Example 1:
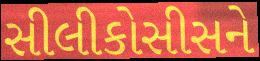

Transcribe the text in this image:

સીલીકોસીસને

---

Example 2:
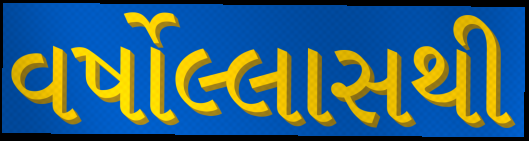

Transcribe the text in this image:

વર્ષોલ્લાસથી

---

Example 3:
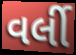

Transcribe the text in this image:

વર્લી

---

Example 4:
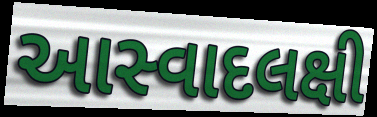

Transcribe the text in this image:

આસ્વાદલક્ષી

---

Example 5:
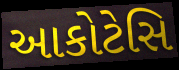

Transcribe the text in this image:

આકોટેસિ